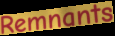
Remnants